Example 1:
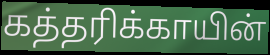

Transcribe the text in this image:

கத்தரிக்காயின்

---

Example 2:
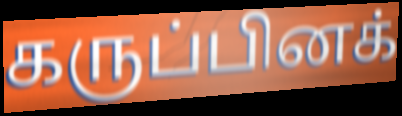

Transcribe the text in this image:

கருப்பினக்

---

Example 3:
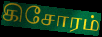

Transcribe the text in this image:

கிசோரம்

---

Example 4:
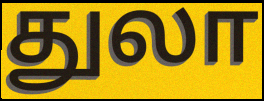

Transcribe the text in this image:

துலா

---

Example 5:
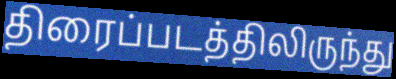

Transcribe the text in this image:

திரைப்படத்திலிருந்து